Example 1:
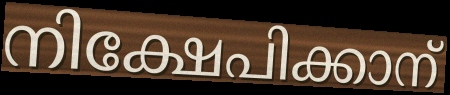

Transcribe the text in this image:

നിക്ഷേപിക്കാന്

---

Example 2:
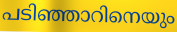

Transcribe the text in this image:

പടിഞ്ഞാറിനെയും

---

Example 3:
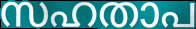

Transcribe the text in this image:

സഹതാപ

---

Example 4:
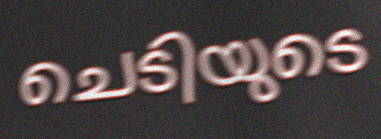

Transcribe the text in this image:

ചെടിയുടെ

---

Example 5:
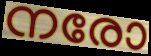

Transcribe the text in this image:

നരോ